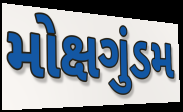
મોક્ષગુંડમ